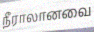
நீராலானவை